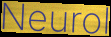
Neurol